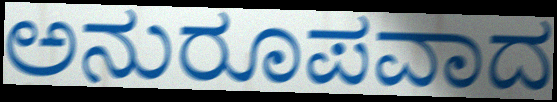
ಅನುರೂಪವಾದ